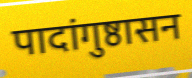
पादांगुष्ठासन